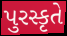
પુરસ્કૃતે